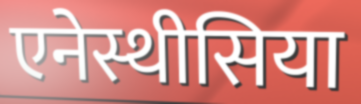
एनेस्थीसिया